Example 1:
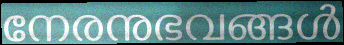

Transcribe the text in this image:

നേരനുഭവങ്ങൾ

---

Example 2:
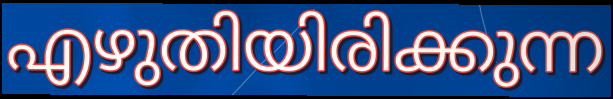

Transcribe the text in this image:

എഴുതിയിരിക്കുന്ന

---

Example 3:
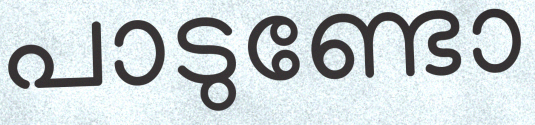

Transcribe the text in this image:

പാടുണ്ടോ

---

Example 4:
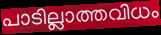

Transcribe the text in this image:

പാടില്ലാത്തവിധം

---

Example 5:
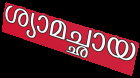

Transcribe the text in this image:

ശ്യാമച്ഛായ